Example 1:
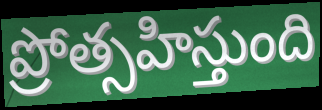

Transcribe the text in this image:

ప్రోత్సహిస్తుంది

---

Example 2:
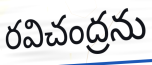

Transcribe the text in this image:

రవిచంద్రను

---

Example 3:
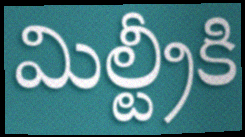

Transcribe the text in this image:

మిల్ట్రీకి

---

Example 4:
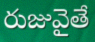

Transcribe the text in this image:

రుజువైతే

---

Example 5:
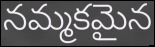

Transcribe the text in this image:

నమ్మకమైన